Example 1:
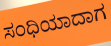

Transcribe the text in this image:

ಸಂಧಿಯಾದಾಗ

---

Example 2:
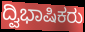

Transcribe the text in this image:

ದ್ವಿಭಾಷಿಕರು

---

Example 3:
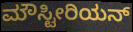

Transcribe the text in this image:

ಮೌಸ್ಟೀರಿಯನ್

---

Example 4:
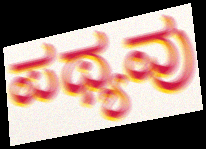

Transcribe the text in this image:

ಪಥ್ಯವು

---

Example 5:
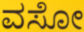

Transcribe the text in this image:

ವಸೋ